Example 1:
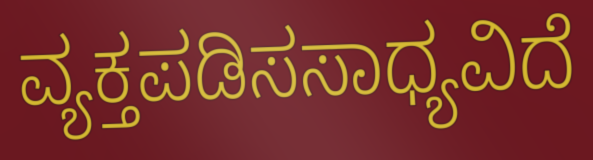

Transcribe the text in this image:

ವ್ಯಕ್ತಪಡಿಸಸಾಧ್ಯವಿದೆ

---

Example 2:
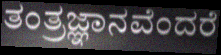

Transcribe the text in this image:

ತಂತ್ರಜ್ಞಾನವೆಂದರೆ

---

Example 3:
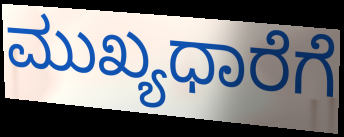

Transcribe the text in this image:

ಮುಖ್ಯಧಾರೆಗೆ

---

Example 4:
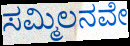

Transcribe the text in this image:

ಸಮ್ಮಿಲನವೇ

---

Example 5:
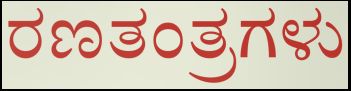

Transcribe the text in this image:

ರಣತಂತ್ರಗಳು